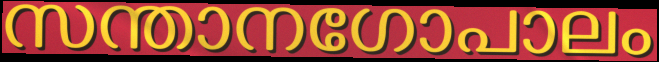
സന്താനഗോപാലം